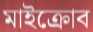
মাইক্রোব